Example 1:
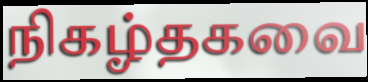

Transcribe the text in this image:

நிகழ்தகவை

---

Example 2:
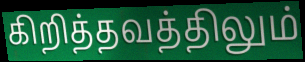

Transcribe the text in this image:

கிறித்தவத்திலும்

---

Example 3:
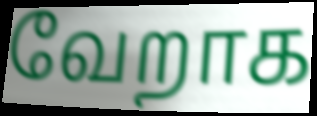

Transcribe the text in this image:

வேறாக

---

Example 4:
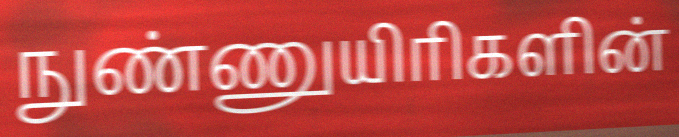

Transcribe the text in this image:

நுண்ணுயிரிகளின்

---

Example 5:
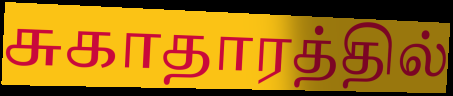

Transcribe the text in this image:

சுகாதாரத்தில்